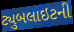
ટ્યુબલાઇટની